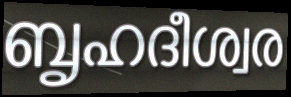
ബൃഹദീശ്വര